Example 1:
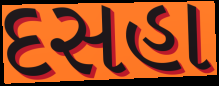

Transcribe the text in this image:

દસહા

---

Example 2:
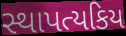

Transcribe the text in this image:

સ્થાપત્યકિય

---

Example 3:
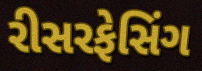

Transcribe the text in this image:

રીસરફેસિંગ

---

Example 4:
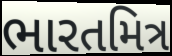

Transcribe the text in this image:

ભારતમિત્ર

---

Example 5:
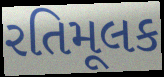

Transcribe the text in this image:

રતિમૂલક